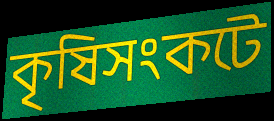
কৃষিসংকটে